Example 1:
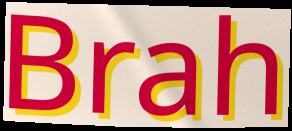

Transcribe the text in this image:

Brah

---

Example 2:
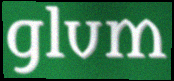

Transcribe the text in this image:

glum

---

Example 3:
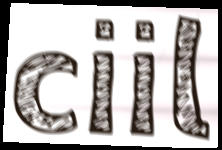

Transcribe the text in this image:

ciil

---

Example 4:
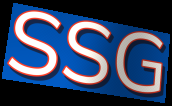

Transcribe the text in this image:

SSG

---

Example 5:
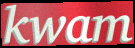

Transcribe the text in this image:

kwam